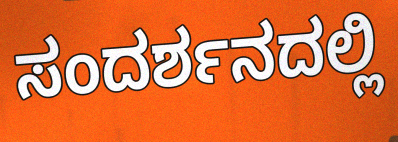
ಸಂದರ್ಶನದಲ್ಲಿ